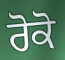
ਰੋਕੋ